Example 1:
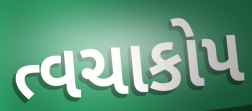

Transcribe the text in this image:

ત્વચાકોપ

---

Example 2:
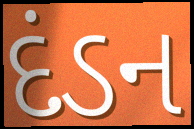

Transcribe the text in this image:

દંડન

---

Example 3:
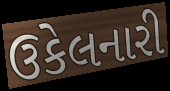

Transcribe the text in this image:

ઉકેલનારી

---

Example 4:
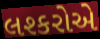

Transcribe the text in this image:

લશ્કરોએ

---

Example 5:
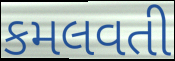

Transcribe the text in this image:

કમલવતી